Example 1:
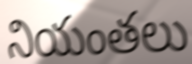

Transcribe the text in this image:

నియంతలు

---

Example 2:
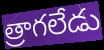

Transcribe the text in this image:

త్రాగలేడు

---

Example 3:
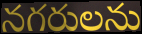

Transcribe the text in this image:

నగరులను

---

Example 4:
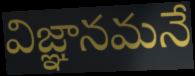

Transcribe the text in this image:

విజ్ఞానమనే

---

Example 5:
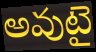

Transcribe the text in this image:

అవుటై